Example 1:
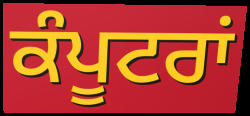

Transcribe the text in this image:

ਕੰਪੂਟਰਾਂ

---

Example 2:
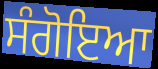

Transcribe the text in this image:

ਸੰਗੋਇਆ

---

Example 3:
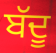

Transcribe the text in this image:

ਬੱਦੂ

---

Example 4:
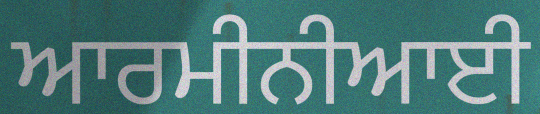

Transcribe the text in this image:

ਆਰਮੀਨੀਆਈ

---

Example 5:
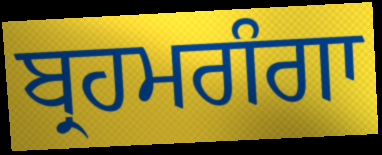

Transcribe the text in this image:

ਬ੍ਰਹਮਗੰਗਾ